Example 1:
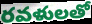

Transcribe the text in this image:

రవళులతో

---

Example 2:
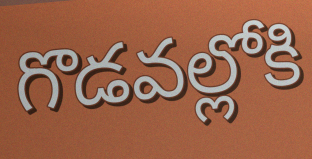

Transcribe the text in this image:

గొడవల్లోకి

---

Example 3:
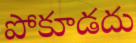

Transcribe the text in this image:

పోకూడదు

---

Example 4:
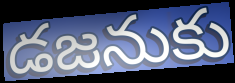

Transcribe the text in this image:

డజనుకు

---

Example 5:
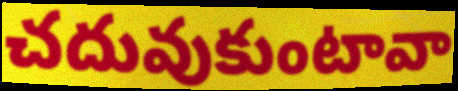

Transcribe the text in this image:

చదువుకుంటావా